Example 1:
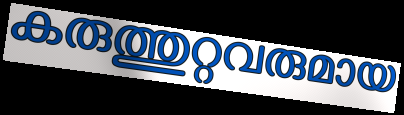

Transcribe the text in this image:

കരുത്തുറ്റവരുമായ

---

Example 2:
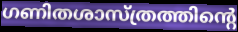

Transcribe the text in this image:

ഗണിതശാസ്ത്രത്തിന്റെ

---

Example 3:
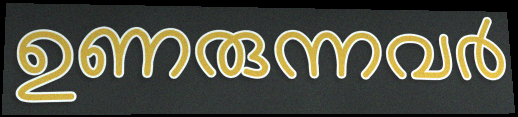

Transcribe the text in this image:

ഉണരുന്നവർ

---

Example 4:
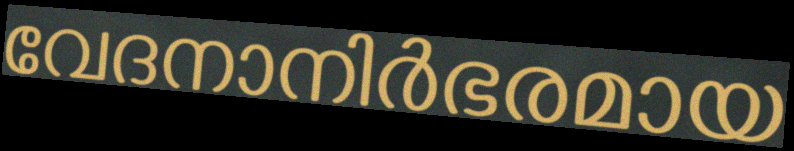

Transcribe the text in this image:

വേദനാനിർഭരമായ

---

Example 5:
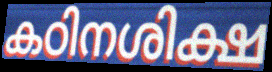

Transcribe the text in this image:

കഠിനശിക്ഷ